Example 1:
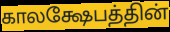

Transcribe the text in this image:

காலக்ஷேபத்தின்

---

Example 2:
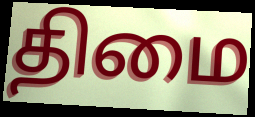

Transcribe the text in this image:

திமை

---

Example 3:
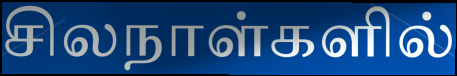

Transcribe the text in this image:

சிலநாள்களில்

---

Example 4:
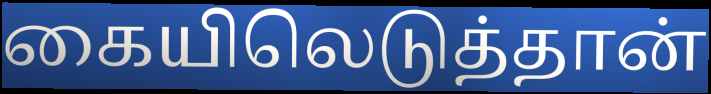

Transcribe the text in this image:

கையிலெடுத்தான்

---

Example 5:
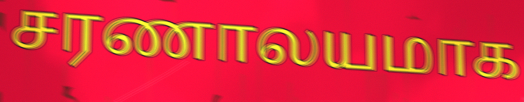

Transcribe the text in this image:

சரணாலயமாக